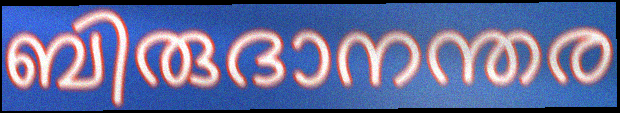
ബിരുദാനന്തര